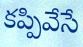
కప్పివేసే